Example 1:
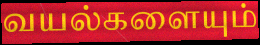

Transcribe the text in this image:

வயல்களையும்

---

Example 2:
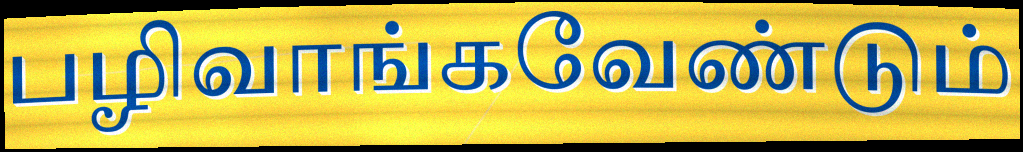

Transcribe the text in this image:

பழிவாங்கவேண்டும்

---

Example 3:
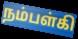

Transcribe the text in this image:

நம்பள்கி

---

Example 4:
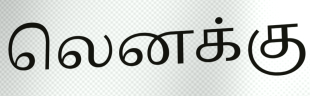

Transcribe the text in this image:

லெனக்கு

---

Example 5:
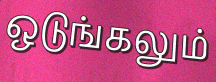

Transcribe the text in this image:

ஒடுங்கலும்